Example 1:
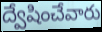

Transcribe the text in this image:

ద్వేషించేవారు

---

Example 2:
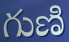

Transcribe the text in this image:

గుణి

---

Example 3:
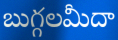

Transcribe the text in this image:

బుగ్గలమీదా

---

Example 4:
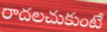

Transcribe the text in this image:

రాదలచుకుంటే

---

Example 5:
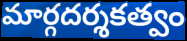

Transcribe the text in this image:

మార్గదర్శకత్వం